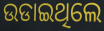
ଉଡାଇଥିଲେ